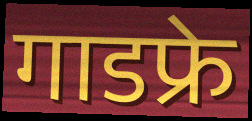
गाडफ्रे